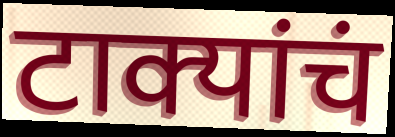
टाक्यांचं